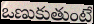
ఒణుకుతుంటే